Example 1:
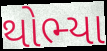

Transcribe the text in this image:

થોભ્યા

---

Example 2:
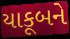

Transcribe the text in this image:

યાકૂબને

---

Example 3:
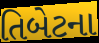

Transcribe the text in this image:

તિબેટના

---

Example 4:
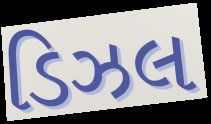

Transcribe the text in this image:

ડિઝલ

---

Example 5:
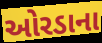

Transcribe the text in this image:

ઓરડાના